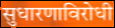
सुधारणाविरोधी